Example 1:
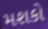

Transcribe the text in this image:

મશકો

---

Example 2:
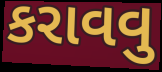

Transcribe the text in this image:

કરાવવુ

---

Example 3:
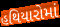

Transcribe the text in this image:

હથિયારોમાં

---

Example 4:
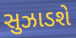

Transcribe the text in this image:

સુઝાડશે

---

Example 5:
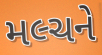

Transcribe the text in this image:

મલ્ચને